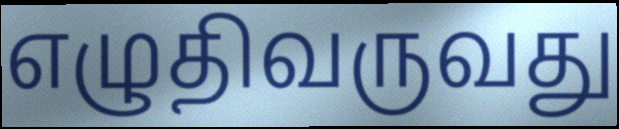
எழுதிவருவது